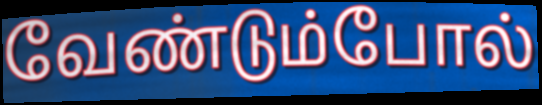
வேண்டும்போல்